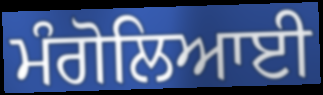
ਮੰਗੋਲਿਆਈ